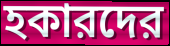
হকারদের